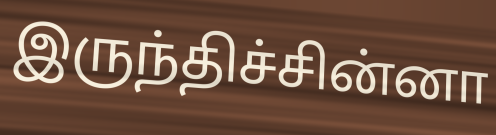
இருந்திச்சின்னா